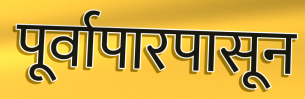
पूर्वापारपासून